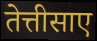
तेत्तीसाए